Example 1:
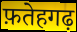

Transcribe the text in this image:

फ़तेहगढ़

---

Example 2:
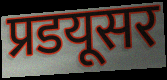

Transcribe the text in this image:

प्रडयूसर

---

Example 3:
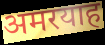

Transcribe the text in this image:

अमरयाह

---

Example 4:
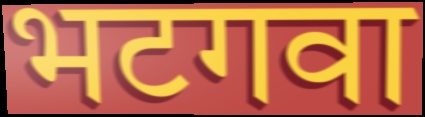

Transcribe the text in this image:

भटगवा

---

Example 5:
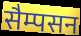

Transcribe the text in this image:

सैम्पसन